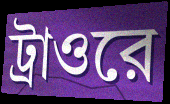
ট্রাওরে